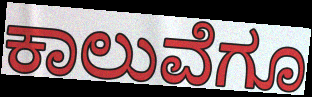
ಕಾಲುವೆಗೂ